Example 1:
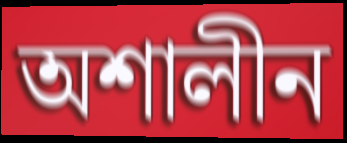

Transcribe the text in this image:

অশালীন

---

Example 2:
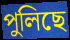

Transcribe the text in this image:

পুলিছে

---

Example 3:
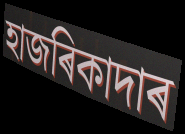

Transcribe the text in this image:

হাজৰিকাদাৰ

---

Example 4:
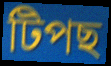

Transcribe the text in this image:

টিপছ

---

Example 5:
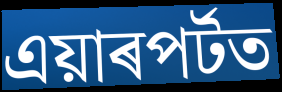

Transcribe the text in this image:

এয়াৰপৰ্টত